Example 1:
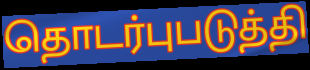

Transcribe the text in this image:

தொடர்புபடுத்தி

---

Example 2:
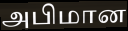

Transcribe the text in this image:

அபிமான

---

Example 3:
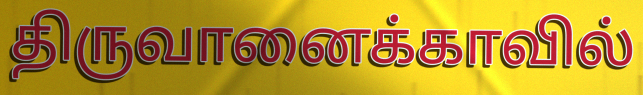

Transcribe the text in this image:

திருவானைக்காவில்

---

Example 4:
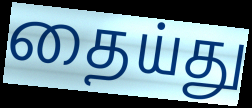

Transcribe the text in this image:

தைய்து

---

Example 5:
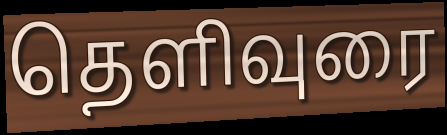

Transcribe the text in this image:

தெளிவுரை